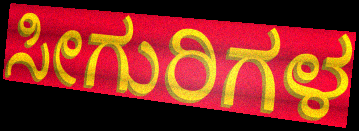
ಸೀಗುರಿಗಳ